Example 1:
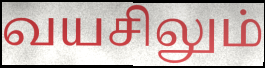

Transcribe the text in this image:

வயசிலும்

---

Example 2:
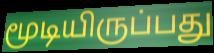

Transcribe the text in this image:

மூடியிருப்பது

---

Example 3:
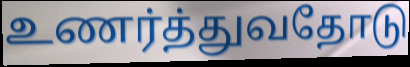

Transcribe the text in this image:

உணர்த்துவதோடு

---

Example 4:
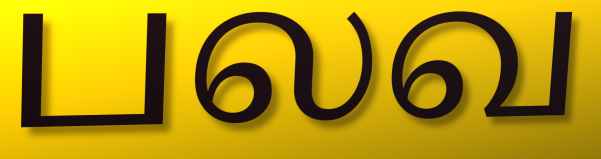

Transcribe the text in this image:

பலவ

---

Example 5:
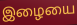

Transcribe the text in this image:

இழையை